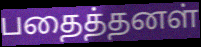
பதைத்தனள்